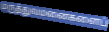
மருத்துவமனைகளைப்